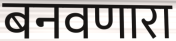
बनवणारा